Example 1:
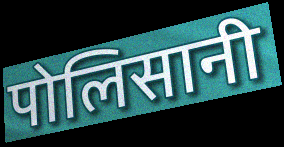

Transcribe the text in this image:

पोलिसानी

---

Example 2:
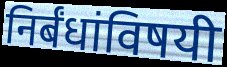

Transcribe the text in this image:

निर्बंधांविषयी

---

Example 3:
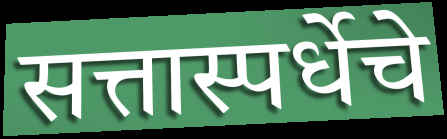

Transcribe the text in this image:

सत्तास्पर्धेचे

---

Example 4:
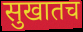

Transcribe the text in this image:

सुखातच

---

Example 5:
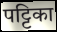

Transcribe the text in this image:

पट्टिका